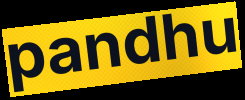
pandhu